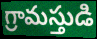
గ్రామస్తుడి